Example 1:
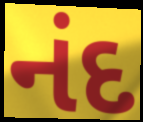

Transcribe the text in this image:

નંદ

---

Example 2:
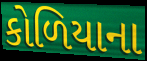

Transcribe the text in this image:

કોળિયાના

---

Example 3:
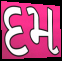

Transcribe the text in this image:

દમ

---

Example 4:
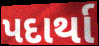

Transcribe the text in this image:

પદાર્થા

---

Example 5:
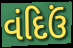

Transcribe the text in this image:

વંદિઉં